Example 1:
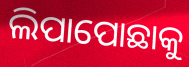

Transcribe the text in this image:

ଲିପାପୋଛାକୁ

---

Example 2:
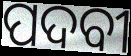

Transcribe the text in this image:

ପଦବୀ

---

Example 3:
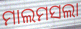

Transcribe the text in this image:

ମାଲମସଲା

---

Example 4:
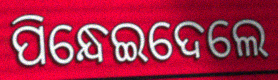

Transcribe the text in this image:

ପିନ୍ଧେଇଦେଲେ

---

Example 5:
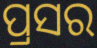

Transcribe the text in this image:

ପ୍ରସର